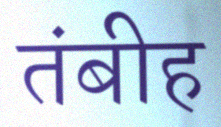
तंबीह